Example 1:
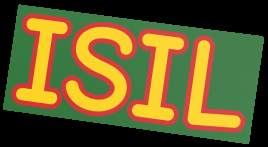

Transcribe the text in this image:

ISIL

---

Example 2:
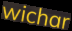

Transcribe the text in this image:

wichar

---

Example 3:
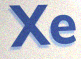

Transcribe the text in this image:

Xe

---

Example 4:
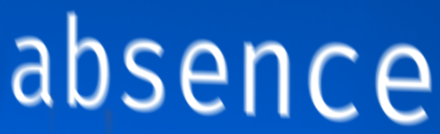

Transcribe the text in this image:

absence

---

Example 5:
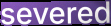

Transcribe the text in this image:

severed